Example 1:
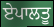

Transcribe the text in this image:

ਏਪਾਲਤੂ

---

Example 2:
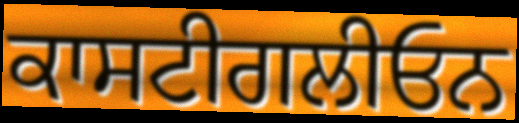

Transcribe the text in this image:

ਕਾਸਟੀਗਲੀਓਨ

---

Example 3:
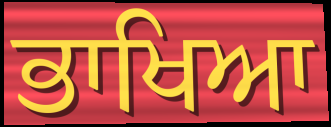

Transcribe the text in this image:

ਭਾਖਿਆ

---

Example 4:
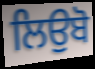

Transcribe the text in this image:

ਲਿਉਬੋ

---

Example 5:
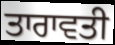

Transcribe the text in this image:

ਤਾਰਾਵਤੀ